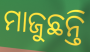
ମାଜୁଛନ୍ତି